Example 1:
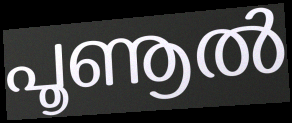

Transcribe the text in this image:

പൂണൂൽ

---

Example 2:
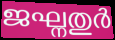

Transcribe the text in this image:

ജഘ്നതുർ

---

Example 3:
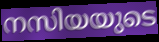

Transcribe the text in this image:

നസിയയുടെ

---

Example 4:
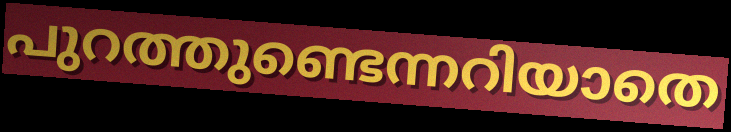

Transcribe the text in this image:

പുറത്തുണ്ടെന്നറിയാതെ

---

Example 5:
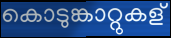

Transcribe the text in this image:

കൊടുങ്കാറ്റുകള്